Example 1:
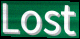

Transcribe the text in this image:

Lost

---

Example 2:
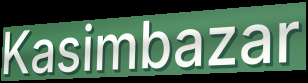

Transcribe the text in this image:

Kasimbazar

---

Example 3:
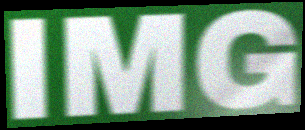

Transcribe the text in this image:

IMG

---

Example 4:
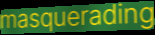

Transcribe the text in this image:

masquerading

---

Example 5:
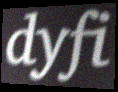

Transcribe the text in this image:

dyfi